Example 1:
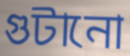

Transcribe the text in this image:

গুটানো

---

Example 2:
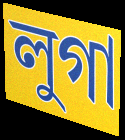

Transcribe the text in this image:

লুগা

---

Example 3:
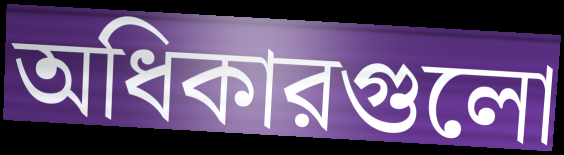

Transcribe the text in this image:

অধিকারগুলো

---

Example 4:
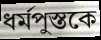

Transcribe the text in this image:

ধর্মপুস্তকে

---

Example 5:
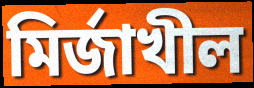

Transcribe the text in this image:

মির্জাখীল